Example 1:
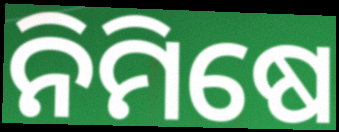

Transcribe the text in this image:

ନିମିଷେ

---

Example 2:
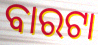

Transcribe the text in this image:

ବାରଟା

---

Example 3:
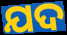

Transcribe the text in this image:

ଯଦ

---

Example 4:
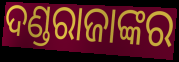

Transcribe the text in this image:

ଦଣ୍ଡରାଜାଙ୍କର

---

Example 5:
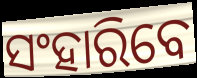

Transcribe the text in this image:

ସଂହାରିବେ